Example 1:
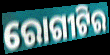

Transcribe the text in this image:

ରୋଗୀଟିର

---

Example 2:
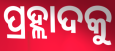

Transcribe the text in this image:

ପ୍ରହ୍ଲାଦକୁ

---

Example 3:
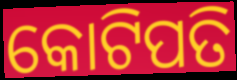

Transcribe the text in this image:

କୋଟିପତି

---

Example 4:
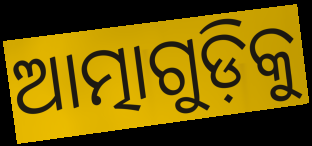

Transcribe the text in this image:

ଆତ୍ମାଗୁଡ଼ିକୁ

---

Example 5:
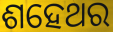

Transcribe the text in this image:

ଶହେଥର